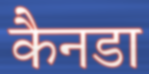
कैनडा